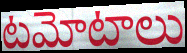
టమోటాలు